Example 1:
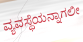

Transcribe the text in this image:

ವ್ಯವಸ್ಥೆಯನ್ನಾಗಲೀ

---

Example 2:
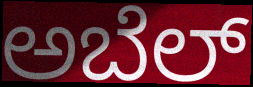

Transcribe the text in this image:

ಅಬೆಲ್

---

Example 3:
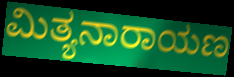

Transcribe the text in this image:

ಮಿತ್ಯನಾರಾಯಣ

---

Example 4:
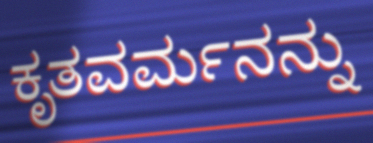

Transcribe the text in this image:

ಕೃತವರ್ಮನನ್ನು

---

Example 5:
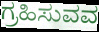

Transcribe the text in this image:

ಗ್ರಹಿಸುವವ